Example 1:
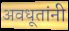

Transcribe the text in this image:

अवधूतांनी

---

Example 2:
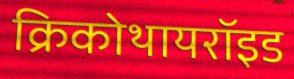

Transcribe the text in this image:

क्रिकोथायरॉइड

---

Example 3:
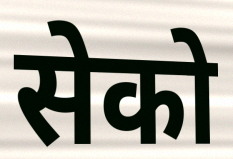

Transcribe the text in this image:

सेको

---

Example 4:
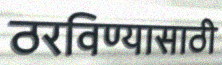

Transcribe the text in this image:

ठरविण्यासाठी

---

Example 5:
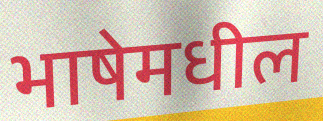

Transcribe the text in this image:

भाषेमधील